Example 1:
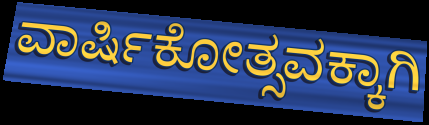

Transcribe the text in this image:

ವಾರ್ಷಿಕೋತ್ಸವಕ್ಕಾಗಿ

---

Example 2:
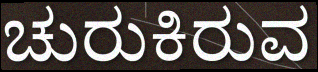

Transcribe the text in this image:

ಚುರುಕಿರುವ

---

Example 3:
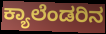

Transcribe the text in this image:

ಕ್ಯಾಲೆಂಡರಿನ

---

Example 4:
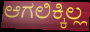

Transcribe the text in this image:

ಆಗಲಿಕ್ಕಿಲ್ಲ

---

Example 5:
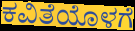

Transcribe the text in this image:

ಕವಿತೆಯೊಳಗೆ